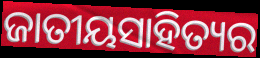
ଜାତୀୟସାହିତ୍ୟର